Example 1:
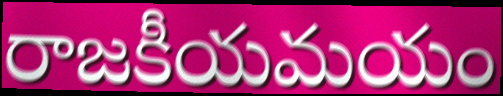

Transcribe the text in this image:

రాజకీయమయం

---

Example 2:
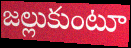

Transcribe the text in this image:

జల్లుకుంటూ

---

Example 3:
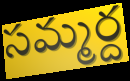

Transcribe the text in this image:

సమ్మర్ద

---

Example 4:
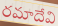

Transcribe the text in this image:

రమాదేవి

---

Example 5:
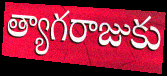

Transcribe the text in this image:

త్యాగరాజుకు